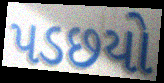
પડછયો